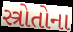
સ્ત્રોતોના